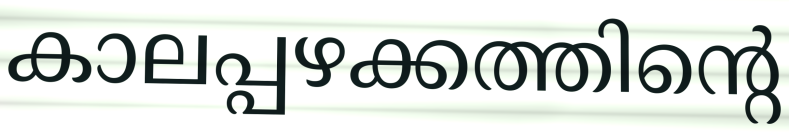
കാലപ്പഴക്കത്തിന്റെ